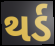
થર્ડ